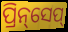
ପ୍ରିନ୍‌ସେପ୍